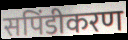
सपिंडीकरण